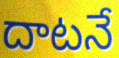
దాటనే